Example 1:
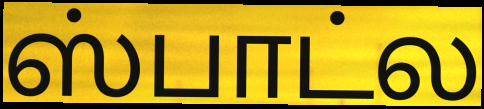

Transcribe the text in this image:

ஸ்பாட்ல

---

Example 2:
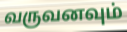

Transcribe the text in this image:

வருவனவும்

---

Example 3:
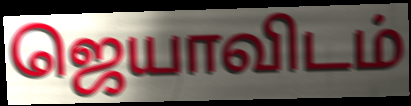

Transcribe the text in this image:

ஜெயாவிடம்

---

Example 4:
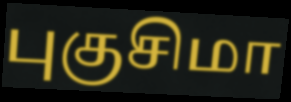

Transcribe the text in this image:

புகுசிமா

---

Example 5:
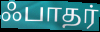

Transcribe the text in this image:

ஃபாதர்